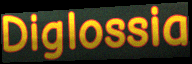
Diglossia